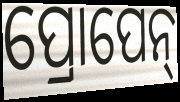
ପ୍ରୋପେନ୍